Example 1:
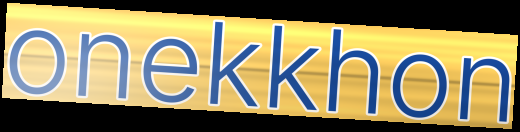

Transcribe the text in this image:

onekkhon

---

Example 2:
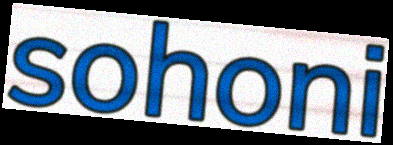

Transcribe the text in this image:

sohoni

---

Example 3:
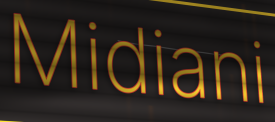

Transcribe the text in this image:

Midiani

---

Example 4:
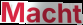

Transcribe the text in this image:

Macht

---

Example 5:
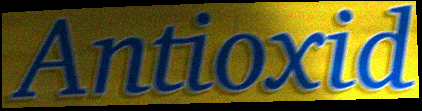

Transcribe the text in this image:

Antioxid